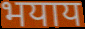
भयाय